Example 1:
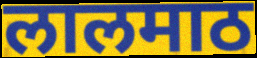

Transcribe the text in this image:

लालमाठ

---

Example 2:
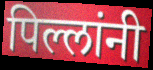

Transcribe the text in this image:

पिल्लांनी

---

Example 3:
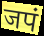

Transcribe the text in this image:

जपं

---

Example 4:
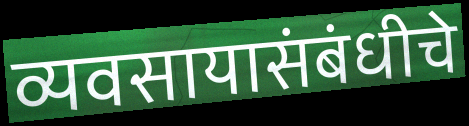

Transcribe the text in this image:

व्यवसायासंबंधीचे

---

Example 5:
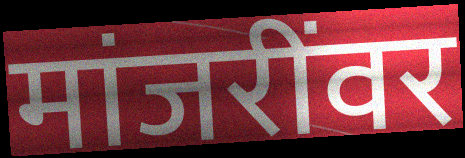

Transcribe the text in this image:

मांजरींवर